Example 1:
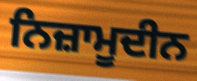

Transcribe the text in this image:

ਨਿਜ਼ਾਮੂਦੀਨ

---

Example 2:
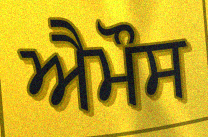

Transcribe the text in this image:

ਐਮੌਸ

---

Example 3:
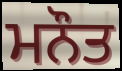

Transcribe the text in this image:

ਮਨੌਤ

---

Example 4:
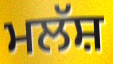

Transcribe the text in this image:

ਮਲੱਸ਼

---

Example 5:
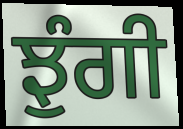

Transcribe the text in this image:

ਝੁੰਗੀ